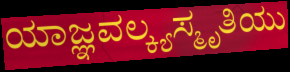
ಯಾಜ್ಞವಲ್ಕ್ಯಸ್ಮೃತಿಯು